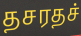
தசரதச்